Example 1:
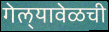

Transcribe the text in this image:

गेल्यावेळची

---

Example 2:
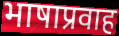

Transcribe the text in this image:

भाषाप्रवाह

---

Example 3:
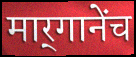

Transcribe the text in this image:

मार्गानेंच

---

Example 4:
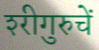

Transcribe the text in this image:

श्रीगुरुचें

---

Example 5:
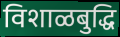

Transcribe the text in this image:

विशाळबुद्धि